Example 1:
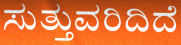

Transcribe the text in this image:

ಸುತ್ತುವರಿದಿದೆ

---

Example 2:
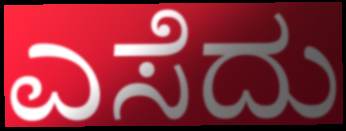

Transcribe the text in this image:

ಎಸೆದು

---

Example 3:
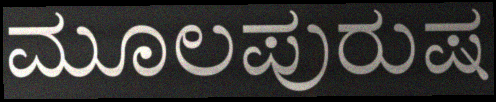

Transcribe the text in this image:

ಮೂಲಪುರುಷ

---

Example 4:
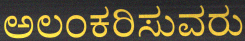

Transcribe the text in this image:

ಅಲಂಕರಿಸುವರು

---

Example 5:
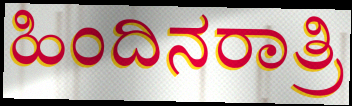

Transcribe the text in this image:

ಹಿಂದಿನರಾತ್ರಿ